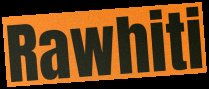
Rawhiti